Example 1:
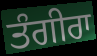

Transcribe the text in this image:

ਤੰਗੀਰਾ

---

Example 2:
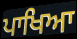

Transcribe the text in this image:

ਪਾਖਿਆ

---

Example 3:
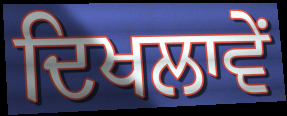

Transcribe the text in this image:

ਦਿਖਲਾਵੇਂ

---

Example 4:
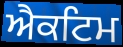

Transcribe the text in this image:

ਐਕਟਿਮ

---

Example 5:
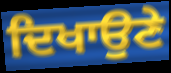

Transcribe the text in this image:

ਦਿਖਾਉਣੇ